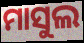
ମାସୁଲ